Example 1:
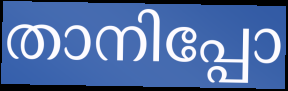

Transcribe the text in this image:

താനിപ്പോ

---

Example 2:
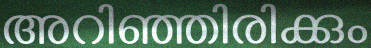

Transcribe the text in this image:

അറിഞ്ഞിരിക്കും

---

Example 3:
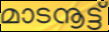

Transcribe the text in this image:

മാടനൂട്ട്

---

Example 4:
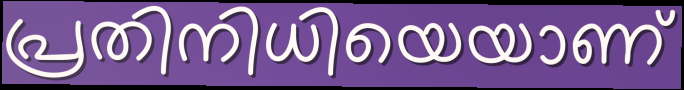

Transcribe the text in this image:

പ്രതിനിധിയെയാണ്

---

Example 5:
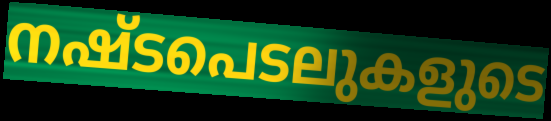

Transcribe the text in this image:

നഷ്ടപെടലുകളുടെ